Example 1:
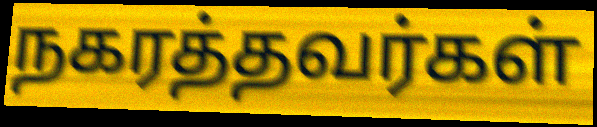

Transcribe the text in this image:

நகரத்தவர்கள்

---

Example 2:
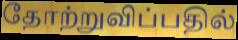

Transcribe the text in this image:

தோற்றுவிப்பதில்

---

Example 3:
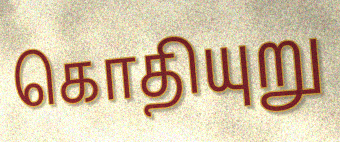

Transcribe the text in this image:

கொதியுறு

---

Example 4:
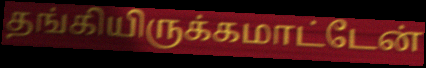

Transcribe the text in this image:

தங்கியிருக்கமாட்டேன்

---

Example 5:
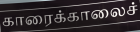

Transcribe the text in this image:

காரைக்காலைச்